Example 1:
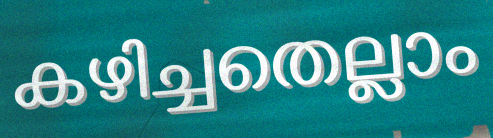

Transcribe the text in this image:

കഴിച്ചതെല്ലാം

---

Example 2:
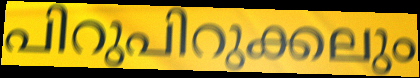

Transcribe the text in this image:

പിറുപിറുക്കലും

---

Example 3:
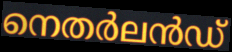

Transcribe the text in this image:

നെതർലൻഡ്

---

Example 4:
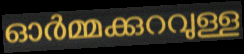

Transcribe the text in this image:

ഓർമ്മക്കുറവുള്ള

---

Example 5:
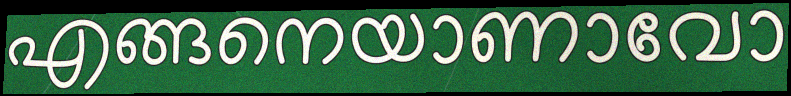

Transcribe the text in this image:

എങ്ങനെയാണാവോ